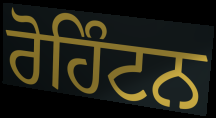
ਰੋਹਿੰਟਨ